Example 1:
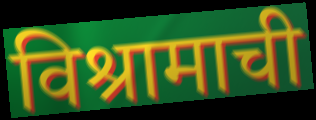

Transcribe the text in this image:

विश्रामाची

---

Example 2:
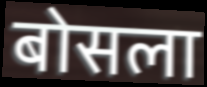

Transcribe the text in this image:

बोसला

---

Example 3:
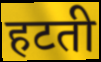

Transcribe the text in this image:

हटती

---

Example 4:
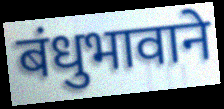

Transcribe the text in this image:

बंधुभावाने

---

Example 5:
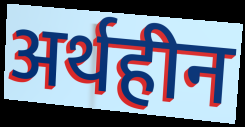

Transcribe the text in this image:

अर्थहीन